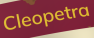
Cleopetra